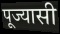
पूज्यासी